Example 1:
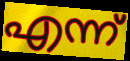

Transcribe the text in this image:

എന്ന്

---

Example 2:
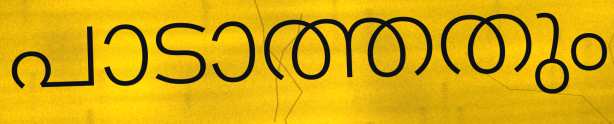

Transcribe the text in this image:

പാടാത്തതും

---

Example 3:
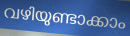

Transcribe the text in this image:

വഴിയുണ്ടാക്കാം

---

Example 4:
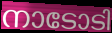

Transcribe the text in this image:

നാടോടി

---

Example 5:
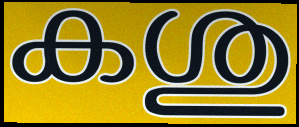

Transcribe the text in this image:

കശു